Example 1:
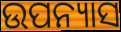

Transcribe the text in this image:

ଉପନ୍ୟାସ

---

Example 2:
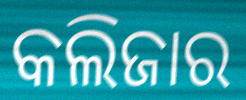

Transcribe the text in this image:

କଲିଜାର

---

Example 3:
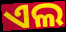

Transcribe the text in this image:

ଏଲ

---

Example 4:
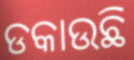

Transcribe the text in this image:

ଡକାଉଛି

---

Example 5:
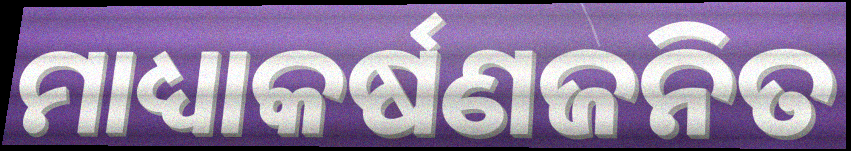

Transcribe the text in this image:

ମାଧ୍ୟାକର୍ଷଣଜନିତ